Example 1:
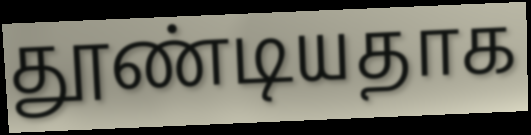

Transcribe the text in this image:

தூண்டியதாக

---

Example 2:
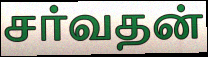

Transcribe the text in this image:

சர்வதன்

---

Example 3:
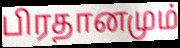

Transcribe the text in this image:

பிரதானமும்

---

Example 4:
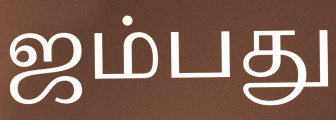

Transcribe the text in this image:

ஜம்பது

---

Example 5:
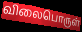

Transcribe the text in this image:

விலைபொருள்